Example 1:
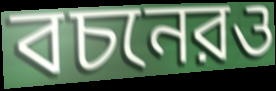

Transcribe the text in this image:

বচনেরও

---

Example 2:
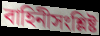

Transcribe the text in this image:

বাহিনীসংশ্লিষ্ট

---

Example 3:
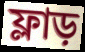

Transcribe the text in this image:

ফ্লাড়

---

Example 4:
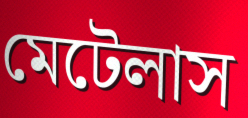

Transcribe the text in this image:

মেটেলাস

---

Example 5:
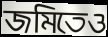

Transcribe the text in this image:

জমিতেও